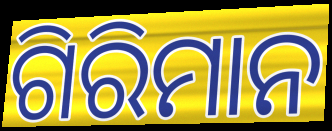
ଗିରିମାନ